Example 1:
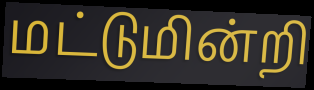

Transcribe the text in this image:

மட்டுமின்றி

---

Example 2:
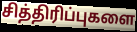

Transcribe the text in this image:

சித்திரிப்புகளை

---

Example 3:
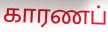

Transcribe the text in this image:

காரணப்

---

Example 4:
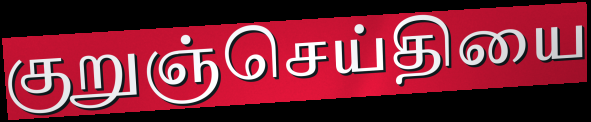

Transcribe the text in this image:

குறுஞ்செய்தியை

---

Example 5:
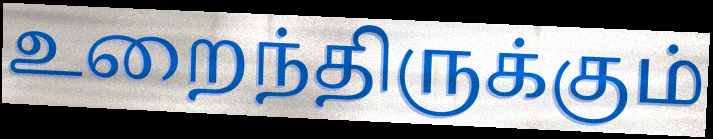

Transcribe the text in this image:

உறைந்திருக்கும்